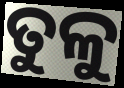
ତୁଳୁ